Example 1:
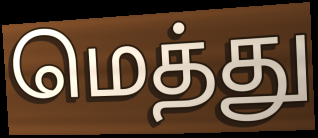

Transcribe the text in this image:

மெத்து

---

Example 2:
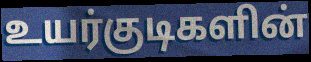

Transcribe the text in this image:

உயர்குடிகளின்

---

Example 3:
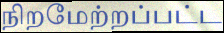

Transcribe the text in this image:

நிறமேற்றப்பட்ட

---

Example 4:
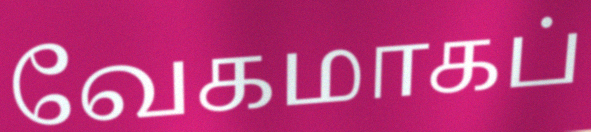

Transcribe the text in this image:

வேகமாகப்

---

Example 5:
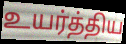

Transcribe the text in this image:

உயர்த்திய